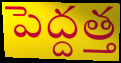
పెద్దత్త